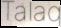
Talaq